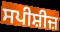
ਸਪੀਸ਼ੀਜ਼